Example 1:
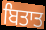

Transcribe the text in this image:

ਬਿਤਾਤ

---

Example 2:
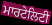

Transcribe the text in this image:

ਮਾਰਟੇਲਿਟੀ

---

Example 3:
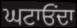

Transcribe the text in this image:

ਘਟਾਓਂਦਾ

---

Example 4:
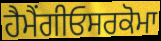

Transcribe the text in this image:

ਹੈਮੈਂਗੀਓਸਰਕੋਮਾ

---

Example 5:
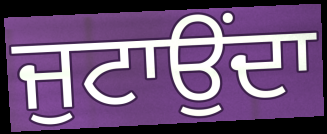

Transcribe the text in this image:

ਜੁਟਾਉਂਦਾ